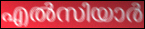
എൽസിയാർ